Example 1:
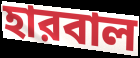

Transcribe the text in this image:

হারবাল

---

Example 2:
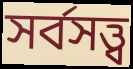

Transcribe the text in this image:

সর্বসত্ত্ব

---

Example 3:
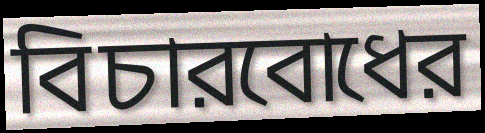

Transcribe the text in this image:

বিচারবোধের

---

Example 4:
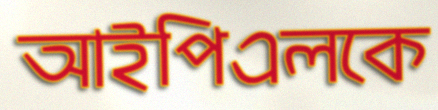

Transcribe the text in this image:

আইপিএলকে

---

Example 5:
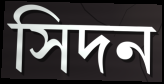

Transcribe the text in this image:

সিদন